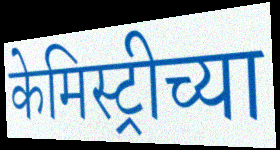
केमिस्ट्रीच्या